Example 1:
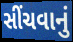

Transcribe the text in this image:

સીંચવાનું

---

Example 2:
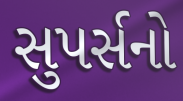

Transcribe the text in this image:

સુપર્સનો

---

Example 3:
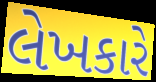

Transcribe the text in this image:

લેખકારે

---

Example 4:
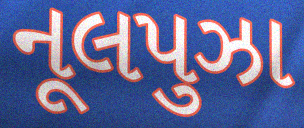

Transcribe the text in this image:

નૂલપુઝા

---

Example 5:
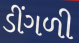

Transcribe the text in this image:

ડીંગળી